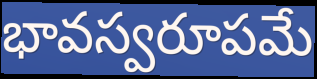
భావస్వరూపమే